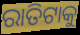
ରାତିଟାକୁ